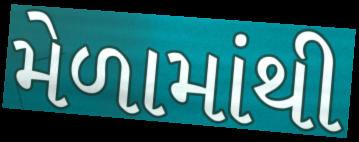
મેળામાંથી